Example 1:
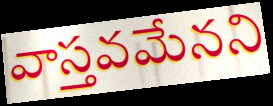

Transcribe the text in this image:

వాస్తవమేనని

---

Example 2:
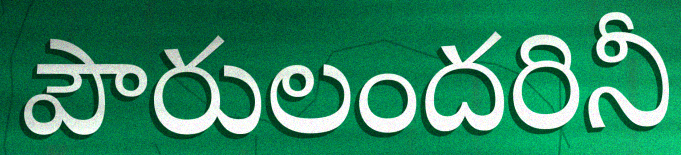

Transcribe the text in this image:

పౌరులందరినీ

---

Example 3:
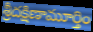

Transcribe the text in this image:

శ్రీదక్షిణామూర్తిం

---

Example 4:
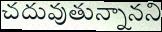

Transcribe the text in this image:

చదువుతున్నానని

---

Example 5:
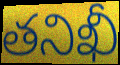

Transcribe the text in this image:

తనిఖీ